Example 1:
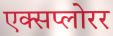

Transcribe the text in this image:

एक्सप्लोरर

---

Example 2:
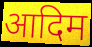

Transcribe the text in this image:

आदिम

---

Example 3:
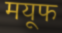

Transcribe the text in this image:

मयूफ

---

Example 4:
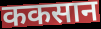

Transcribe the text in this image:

ककसान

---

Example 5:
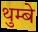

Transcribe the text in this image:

थुम्बे